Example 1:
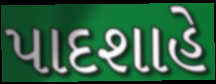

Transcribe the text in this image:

પાદશાહે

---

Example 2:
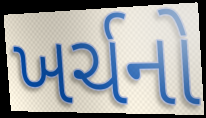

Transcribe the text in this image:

ખર્ચનો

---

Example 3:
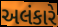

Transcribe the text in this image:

અલંકારે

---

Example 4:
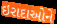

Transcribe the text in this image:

ઇરાદાઓને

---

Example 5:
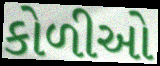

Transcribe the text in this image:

કોળીઓ